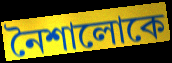
নৈশালোকে